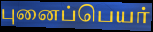
புனைப்பெயர்